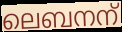
ലെബനന്